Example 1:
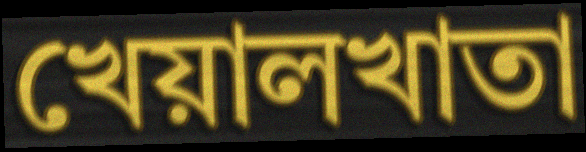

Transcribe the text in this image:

খেয়ালখাতা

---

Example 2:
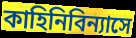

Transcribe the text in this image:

কাহিনিবিন্যাসে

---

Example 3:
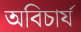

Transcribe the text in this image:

অবিচার্য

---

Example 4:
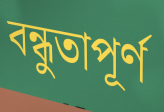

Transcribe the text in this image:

বন্ধুতাপূর্ণ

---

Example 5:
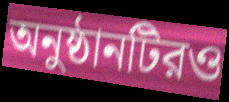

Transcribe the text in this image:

অনুষ্ঠানটিরও